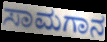
ಸಾಮಗಾನ